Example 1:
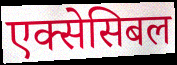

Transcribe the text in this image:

एक्सेसिबल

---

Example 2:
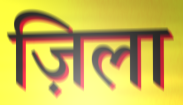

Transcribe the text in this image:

ज़िला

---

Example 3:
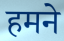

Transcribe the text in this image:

हमने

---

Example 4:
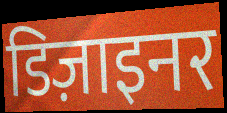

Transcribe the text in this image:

डिज़ाइनर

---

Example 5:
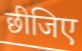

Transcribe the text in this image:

छीजिए